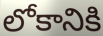
లోకానికి